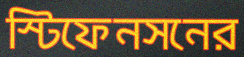
স্টিফেনসনের